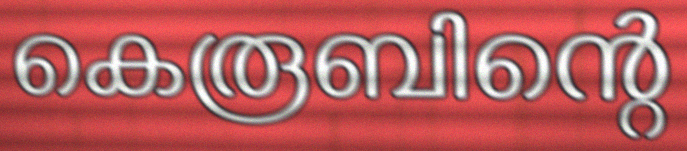
കെരൂബിന്റെ